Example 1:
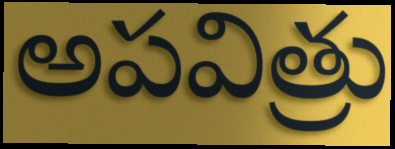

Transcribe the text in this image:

అపవిత్రు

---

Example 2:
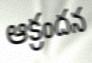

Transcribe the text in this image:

ఆక్రందన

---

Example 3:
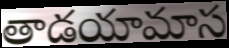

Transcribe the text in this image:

తాడయామాస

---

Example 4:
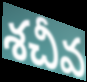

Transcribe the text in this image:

శచీవ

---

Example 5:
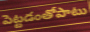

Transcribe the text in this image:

పెట్టడంతోపాటు